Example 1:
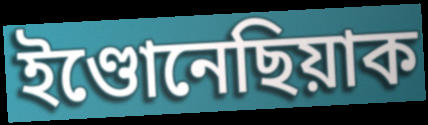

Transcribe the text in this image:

ইণ্ডোনেছিয়াক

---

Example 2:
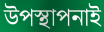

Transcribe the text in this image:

উপস্থাপনাই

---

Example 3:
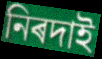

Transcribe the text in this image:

নিৰদাই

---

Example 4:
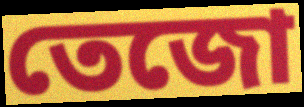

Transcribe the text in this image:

তেজো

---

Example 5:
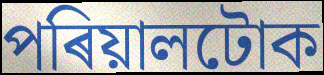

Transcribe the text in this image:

পৰিয়ালটোক